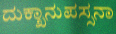
ದುಕ್ಖಾನುಪಸ್ಸನಾ